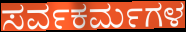
ಸರ್ವಕರ್ಮಗಳ